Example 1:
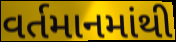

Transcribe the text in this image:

વર્તમાનમાંથી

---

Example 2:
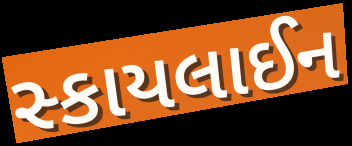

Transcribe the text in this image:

સ્કાયલાઈન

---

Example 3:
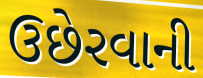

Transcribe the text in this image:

ઉછેરવાની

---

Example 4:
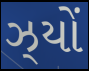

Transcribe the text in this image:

ઝ્યોં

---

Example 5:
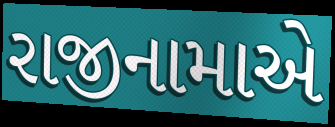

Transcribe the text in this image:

રાજીનામાએ